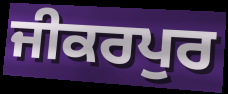
ਜੀਕਰਪੁਰ